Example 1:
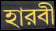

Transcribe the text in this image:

হারবী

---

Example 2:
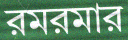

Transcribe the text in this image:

রমরমার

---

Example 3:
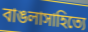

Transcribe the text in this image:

বাঙলাসাহিত্যে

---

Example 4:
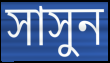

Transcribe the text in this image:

সাসুন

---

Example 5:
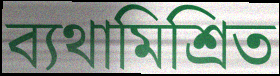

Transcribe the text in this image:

ব্যথামিশ্রিত